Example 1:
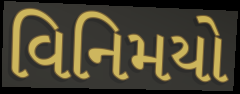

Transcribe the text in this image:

વિનિમયો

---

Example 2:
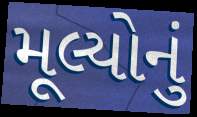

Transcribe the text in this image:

મૂલ્યોનું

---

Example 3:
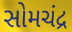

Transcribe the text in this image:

સોમચંદ્ર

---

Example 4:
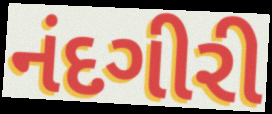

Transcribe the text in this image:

નંદગીરી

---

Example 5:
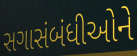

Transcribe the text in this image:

સગાસંબંધીઓને